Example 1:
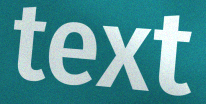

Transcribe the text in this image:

text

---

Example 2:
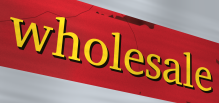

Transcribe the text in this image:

wholesale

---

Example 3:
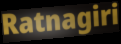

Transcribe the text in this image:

Ratnagiri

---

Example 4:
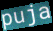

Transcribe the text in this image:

puja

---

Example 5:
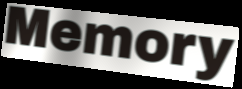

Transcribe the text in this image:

Memory